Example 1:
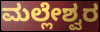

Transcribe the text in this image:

ಮಲ್ಲೇಶ್ವರ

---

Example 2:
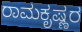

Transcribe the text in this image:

ರಾಮಕೃಷ್ಣರ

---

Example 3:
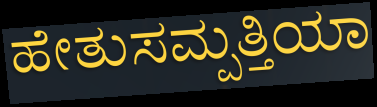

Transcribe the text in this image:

ಹೇತುಸಮ್ಪತ್ತಿಯಾ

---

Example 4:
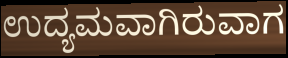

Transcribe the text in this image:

ಉದ್ಯಮವಾಗಿರುವಾಗ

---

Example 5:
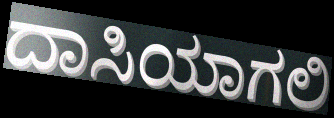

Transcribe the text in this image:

ದಾಸಿಯಾಗಲಿ